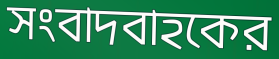
সংবাদবাহকের